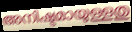
അനിഷ്ടമായുള്ളതു